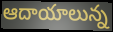
ఆదాయాలున్న